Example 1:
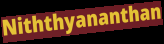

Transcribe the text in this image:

Niththyananthan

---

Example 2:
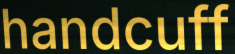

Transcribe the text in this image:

handcuff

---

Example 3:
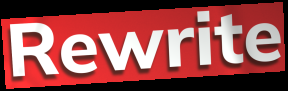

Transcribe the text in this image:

Rewrite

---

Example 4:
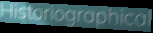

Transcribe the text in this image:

Historiographical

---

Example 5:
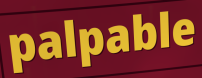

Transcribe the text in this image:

palpable